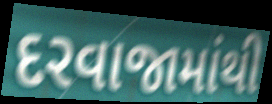
દરવાજામાંથી